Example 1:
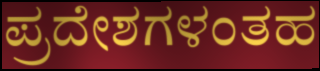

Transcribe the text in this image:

ಪ್ರದೇಶಗಳಂತಹ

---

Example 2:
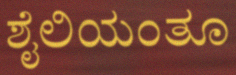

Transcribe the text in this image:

ಶೈಲಿಯಂತೂ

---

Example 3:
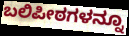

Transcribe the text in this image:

ಬಲಿಪೀಠಗಳನ್ನೂ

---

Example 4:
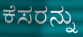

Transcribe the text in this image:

ಕೆಸರನ್ನು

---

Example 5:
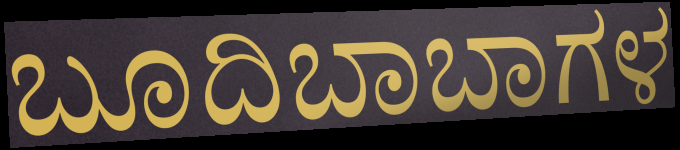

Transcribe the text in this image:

ಬೂದಿಬಾಬಾಗಳ